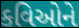
કવિઓને